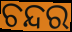
ଚନ୍ଦର